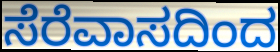
ಸೆರೆವಾಸದಿಂದ